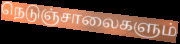
நெடுஞ்சாலைகளும்